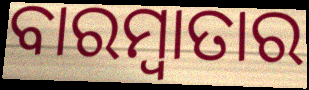
ବାରମ୍ବାତାର